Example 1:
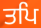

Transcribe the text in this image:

ਤਪਿ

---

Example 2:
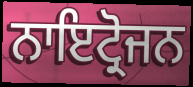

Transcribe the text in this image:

ਨਾਇਟ੍ਰੋਜਨ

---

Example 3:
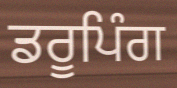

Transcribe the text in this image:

ਡਰੂਪਿੰਗ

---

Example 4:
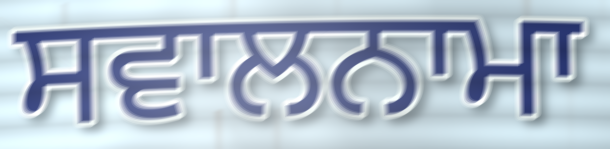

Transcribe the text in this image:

ਸਵਾਲਨਾਮਾ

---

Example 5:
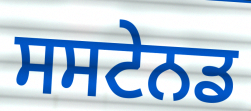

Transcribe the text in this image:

ਸਸਟੇਨਡ